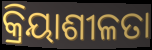
କ୍ରିୟାଶୀଳତା